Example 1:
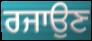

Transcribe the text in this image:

ਰਜਾਉਣ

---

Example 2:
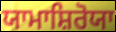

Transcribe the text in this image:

ਯਾਮਾਸ਼ਿਰੋਯਾ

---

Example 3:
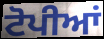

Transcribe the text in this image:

ਟੋਪੀਆਂ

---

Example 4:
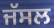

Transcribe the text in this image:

ਜੱਸਲ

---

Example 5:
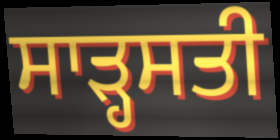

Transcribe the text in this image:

ਸਾੜ੍ਹਸਤੀ